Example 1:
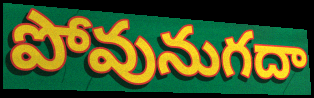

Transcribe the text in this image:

పోవునుగదా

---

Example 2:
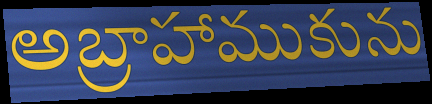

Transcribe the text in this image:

అబ్రాహాముకును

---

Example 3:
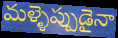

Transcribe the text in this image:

మళ్ళెప్పుడైనా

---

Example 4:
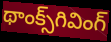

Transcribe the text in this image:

థాంక్స్‌గివింగ్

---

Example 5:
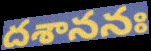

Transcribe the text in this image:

దశాననః